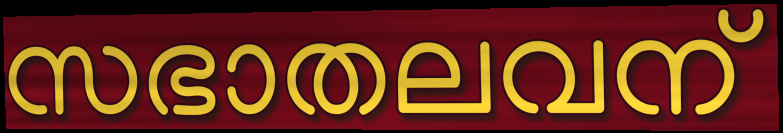
സഭാതലവന്